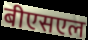
बीएसएल